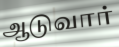
ஆடுவார்